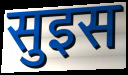
सुइस